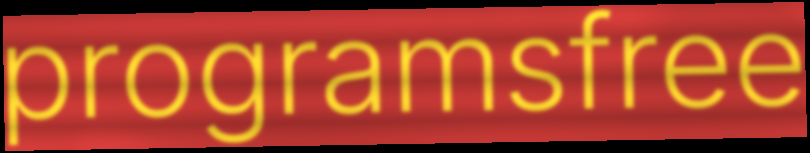
programsfree